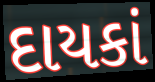
દાયકાં